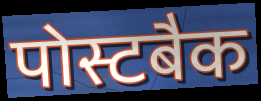
पोस्टबैक